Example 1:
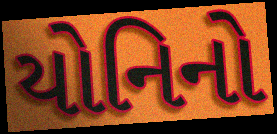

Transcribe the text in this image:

યોનિનો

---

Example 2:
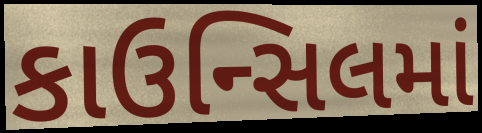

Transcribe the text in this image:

કાઉન્સિલમાં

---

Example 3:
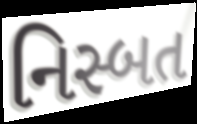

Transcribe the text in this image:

નિસ્બત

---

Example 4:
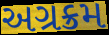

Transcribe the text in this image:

અગ્રક્રમ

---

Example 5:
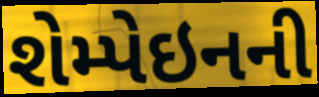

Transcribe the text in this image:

શેમ્પેઇનની